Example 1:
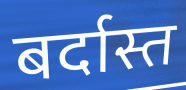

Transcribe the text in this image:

बर्दास्त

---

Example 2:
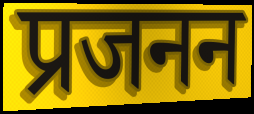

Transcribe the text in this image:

प्रजनन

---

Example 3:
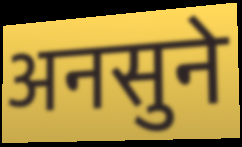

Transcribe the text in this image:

अनसुने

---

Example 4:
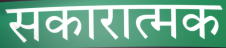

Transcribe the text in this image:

सकारात्‍मक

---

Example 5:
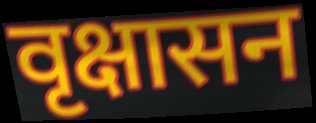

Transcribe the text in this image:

वृक्षासन